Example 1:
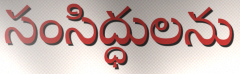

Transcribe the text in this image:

సంసిద్ధులను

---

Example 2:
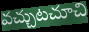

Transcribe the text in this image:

వచ్చుటచూచి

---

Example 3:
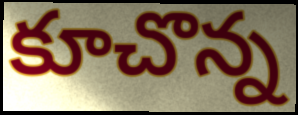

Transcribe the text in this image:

కూచొన్న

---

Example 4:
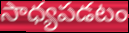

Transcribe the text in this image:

సాధ్యపడటం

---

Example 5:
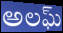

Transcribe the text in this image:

అలఘ్